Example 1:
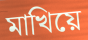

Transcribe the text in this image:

মাখিয়ে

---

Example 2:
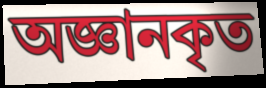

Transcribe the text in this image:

অজ্ঞানকৃত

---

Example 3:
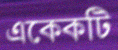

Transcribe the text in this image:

একেকটি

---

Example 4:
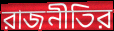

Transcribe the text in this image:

রাজনীতির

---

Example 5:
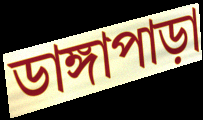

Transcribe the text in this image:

ডাঙ্গাপাড়া